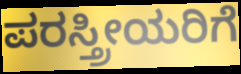
ಪರಸ್ತ್ರೀಯರಿಗೆ